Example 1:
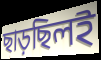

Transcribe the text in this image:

ছাড়ছিলই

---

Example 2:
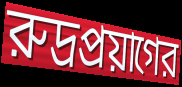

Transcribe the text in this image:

রুদ্রপ্রয়াগের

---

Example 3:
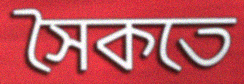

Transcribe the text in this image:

সৈকতে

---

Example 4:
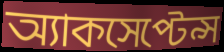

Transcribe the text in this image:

অ্যাকসেপ্টেন্স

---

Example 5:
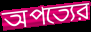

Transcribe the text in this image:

অপত্যের